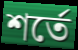
শর্তে